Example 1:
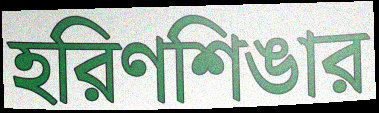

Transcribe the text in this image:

হরিণশিঙার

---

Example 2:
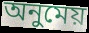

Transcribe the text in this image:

অনুমেয়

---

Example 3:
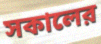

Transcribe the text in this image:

সকালের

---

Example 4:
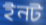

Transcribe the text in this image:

ইনট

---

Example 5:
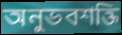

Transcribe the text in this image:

অনুভবশক্তি